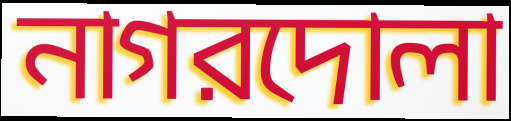
নাগরদোলা